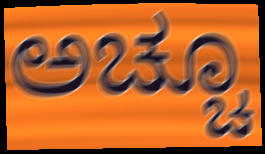
ಅಚ್ಚೂ